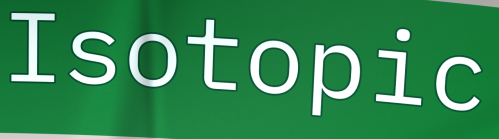
Isotopic